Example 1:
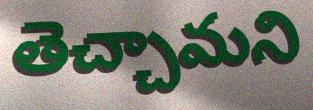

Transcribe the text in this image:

తెచ్చామని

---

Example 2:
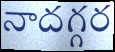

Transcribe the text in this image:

నాదగ్గర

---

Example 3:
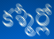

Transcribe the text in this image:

కశ్మీర్లో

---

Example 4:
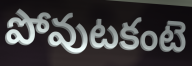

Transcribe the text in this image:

పోవుటకంటె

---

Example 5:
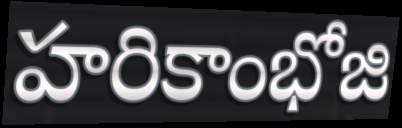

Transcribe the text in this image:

హరికాంభోజి